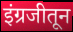
इंग्रजीतून